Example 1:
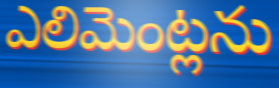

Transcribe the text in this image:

ఎలిమెంట్లను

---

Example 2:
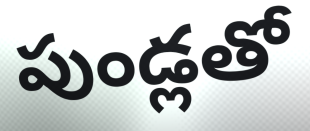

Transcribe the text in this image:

పుండ్లతో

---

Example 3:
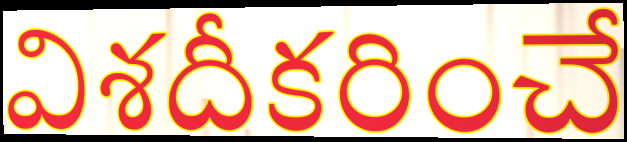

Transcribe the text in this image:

విశదీకరించే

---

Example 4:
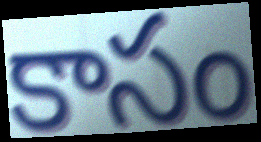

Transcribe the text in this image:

కాసం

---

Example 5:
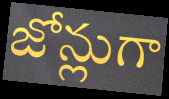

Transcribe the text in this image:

జోన్లుగా